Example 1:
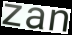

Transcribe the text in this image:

zan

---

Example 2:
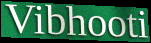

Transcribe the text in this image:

Vibhooti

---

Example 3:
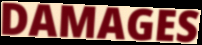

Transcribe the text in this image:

DAMAGES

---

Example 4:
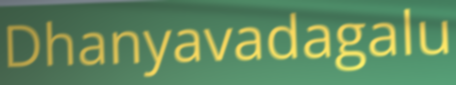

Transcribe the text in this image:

Dhanyavadagalu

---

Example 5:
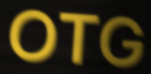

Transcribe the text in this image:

OTG